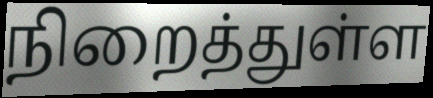
நிறைத்துள்ள